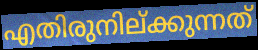
എതിരുനില്ക്കുന്നത്